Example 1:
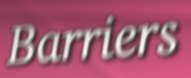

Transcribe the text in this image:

Barriers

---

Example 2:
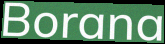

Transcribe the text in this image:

Borana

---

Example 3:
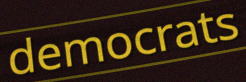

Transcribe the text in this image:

democrats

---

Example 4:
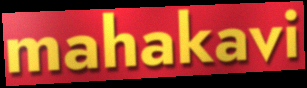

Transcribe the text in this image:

mahakavi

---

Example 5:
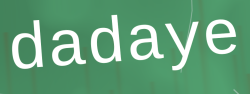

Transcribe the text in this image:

dadaye